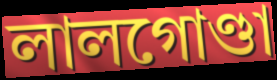
লালগোণ্ডা